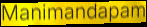
Manimandapam